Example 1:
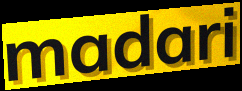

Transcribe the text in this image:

madari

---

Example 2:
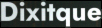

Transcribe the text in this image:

Dixitque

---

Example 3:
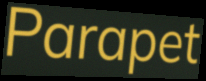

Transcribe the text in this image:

Parapet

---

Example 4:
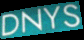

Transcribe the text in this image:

DNYS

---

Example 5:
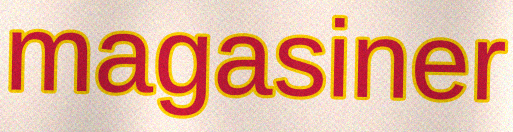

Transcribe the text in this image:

magasiner